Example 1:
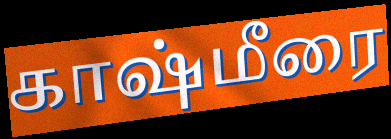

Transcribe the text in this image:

காஷ்மீரை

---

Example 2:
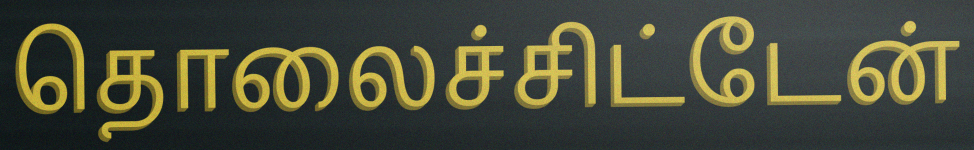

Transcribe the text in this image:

தொலைச்சிட்டேன்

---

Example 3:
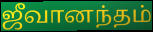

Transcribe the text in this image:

ஜீவானந்தம்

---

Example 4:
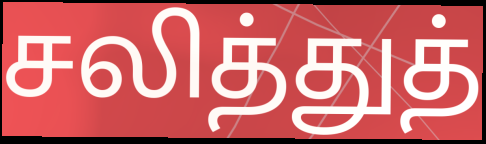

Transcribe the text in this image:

சலித்துத்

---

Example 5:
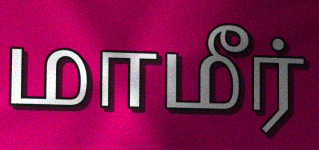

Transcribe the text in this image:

மாமீர்